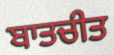
ਬਾਤਚੀਤ